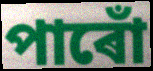
পাৰোঁ